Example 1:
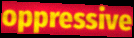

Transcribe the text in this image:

oppressive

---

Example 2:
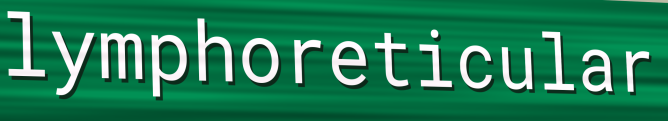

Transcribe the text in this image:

lymphoreticular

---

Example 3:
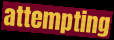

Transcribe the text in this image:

attempting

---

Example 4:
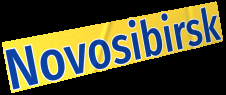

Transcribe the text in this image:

Novosibirsk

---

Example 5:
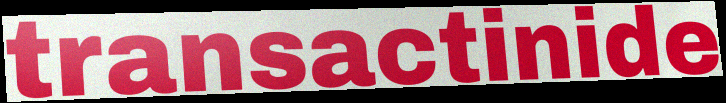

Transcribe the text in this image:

transactinide